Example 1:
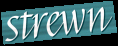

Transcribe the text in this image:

strewn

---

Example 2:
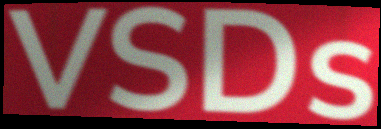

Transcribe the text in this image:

VSDs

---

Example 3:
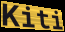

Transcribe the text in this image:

Kiti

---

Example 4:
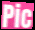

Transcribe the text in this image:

Pic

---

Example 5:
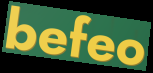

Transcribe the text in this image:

befeo